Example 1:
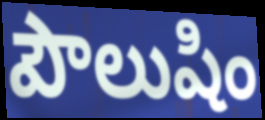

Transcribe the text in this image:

పౌలుషిం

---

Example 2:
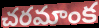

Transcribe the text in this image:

చరమాంక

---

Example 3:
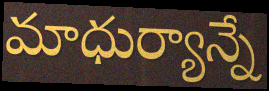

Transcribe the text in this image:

మాధుర్యాన్నే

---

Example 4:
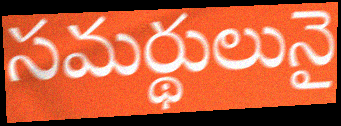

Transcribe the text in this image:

సమర్థులునై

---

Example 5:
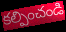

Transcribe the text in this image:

కల్పించండి